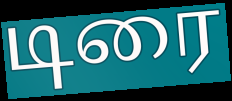
டிரை